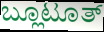
ಬ್ಲೂಟೂತ್